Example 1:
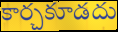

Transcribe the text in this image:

కార్చకూడదు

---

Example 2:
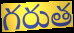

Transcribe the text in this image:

గరుత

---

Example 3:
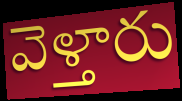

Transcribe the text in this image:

వెళ్తారు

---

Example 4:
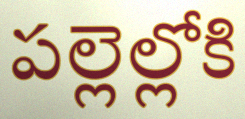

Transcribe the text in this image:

పల్లెల్లోకి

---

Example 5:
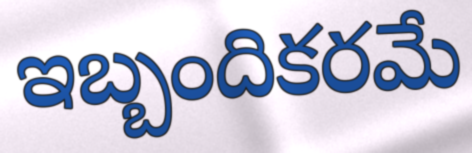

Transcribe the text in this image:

ఇబ్బందికరమే